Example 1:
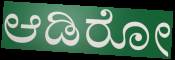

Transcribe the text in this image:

ಆಡಿರೋ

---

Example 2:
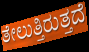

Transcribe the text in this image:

ತೇಲುತ್ತಿರುತ್ತದೆ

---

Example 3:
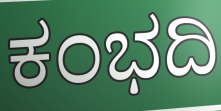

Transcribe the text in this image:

ಕಂಭದಿ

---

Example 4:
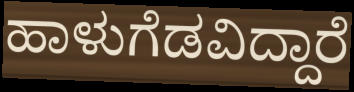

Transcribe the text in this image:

ಹಾಳುಗೆಡವಿದ್ದಾರೆ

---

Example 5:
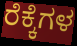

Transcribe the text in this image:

ರೆಕ್ಕೆಗಳ